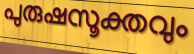
പുരുഷസൂക്തവും